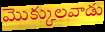
మొక్కులవాడు